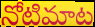
నోటిమాట